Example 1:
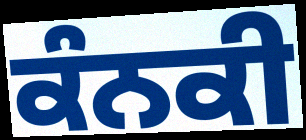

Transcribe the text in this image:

ਕੰਨਕੀ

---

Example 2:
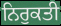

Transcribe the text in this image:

ਨਿਰੁਕਤੀ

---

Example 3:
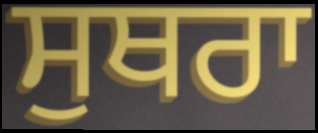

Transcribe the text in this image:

ਸੁਥਰਾ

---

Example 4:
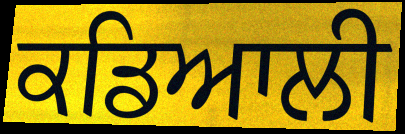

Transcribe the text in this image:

ਕਡਿਆਲੀ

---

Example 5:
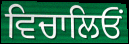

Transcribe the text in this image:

ਵਿਚਾਲਿਓਂ